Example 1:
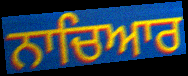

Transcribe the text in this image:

ਨਾਚਿਆਰ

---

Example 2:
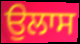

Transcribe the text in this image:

ਉਲਾਸ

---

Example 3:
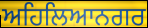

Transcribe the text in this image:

ਅਹਿਲਿਆਨਗਰ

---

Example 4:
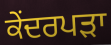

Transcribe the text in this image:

ਕੇਂਦਰਪੜਾ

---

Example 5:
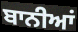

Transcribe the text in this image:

ਬਾਨੀਆਂ